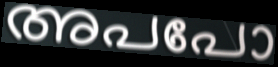
അപപോ